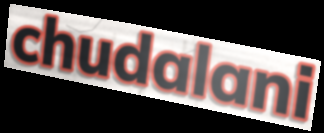
chudalani